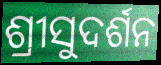
ଶ୍ରୀସୁଦର୍ଶନ